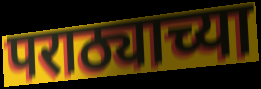
पराठ्याच्या